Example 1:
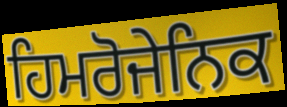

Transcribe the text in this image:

ਹਿਮਰੋਜੇਨਿਕ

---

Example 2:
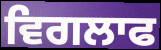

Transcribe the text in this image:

ਵਿਗਲਾਫ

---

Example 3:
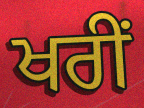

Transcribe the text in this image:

ਖਰੀਂ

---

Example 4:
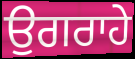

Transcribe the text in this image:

ਉਗਰਾਹੇ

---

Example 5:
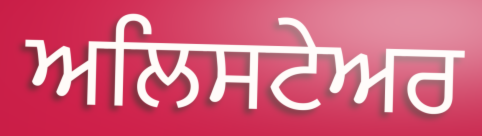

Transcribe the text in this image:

ਅਲਿਸਟੇਅਰ